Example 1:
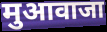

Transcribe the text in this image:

मुआवाजा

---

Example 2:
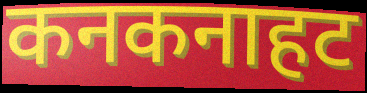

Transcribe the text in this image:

कनकनाहट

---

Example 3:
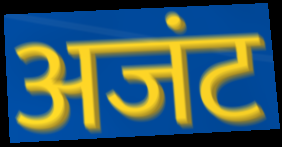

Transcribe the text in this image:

अजंट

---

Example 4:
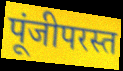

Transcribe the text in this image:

पूंजीपरस्त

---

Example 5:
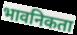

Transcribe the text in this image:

भावनिकता